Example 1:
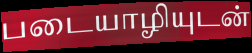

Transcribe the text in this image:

படையாழியுடன்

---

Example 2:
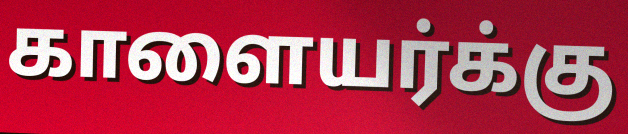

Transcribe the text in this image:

காளையர்க்கு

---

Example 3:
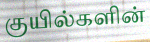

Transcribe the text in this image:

குயில்களின்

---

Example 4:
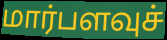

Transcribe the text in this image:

மார்பளவுச்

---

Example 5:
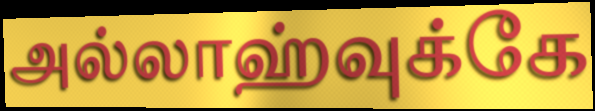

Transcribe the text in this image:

அல்லாஹ்வுக்கே